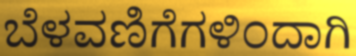
ಬೆಳವಣಿಗೆಗಳಿಂದಾಗಿ